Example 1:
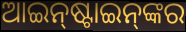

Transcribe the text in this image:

ଆଇନ୍‌ଷ୍ଟାଇନ୍‌ଙ୍କର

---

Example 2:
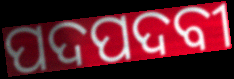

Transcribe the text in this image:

ପଦପଦବୀ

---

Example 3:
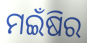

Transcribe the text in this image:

ମଇଁଷିର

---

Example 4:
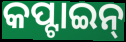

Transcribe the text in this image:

କପ୍ଟାଇନ୍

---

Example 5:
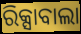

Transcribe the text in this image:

ରିକ୍ସାବାଲା